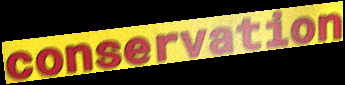
conservation